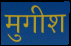
मुगीश